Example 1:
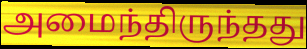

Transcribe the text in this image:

அமைந்திருந்தது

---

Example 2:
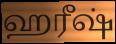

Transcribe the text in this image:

ஹரீஷ்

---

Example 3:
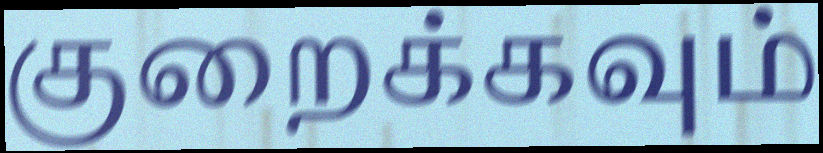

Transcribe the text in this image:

குறைக்கவும்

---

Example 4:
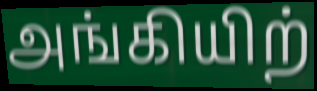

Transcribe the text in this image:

அங்கியிற்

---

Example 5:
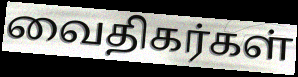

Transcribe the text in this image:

வைதிகர்கள்